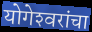
योगेश्वरांचा